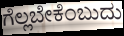
ಗೆಲ್ಲಬೇಕೆಂಬುದು